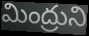
మింద్రుని